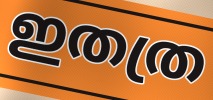
ഇതത്ര